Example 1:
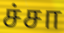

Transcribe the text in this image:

ச்சா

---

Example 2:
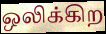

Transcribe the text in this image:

ஒலிக்கிற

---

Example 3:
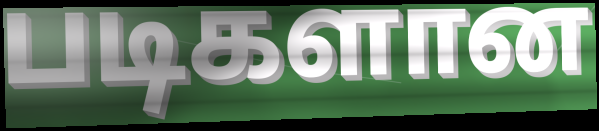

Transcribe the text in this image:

படிகளான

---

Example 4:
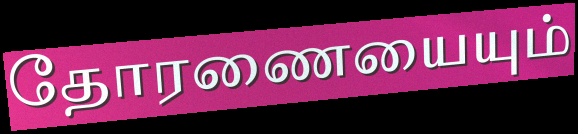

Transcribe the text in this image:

தோரணையையும்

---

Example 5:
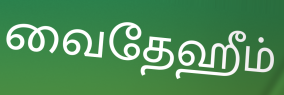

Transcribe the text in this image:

வைதேஹீம்